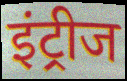
इंट्रीज